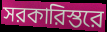
সরকারিস্তরে